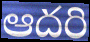
ఆదరి